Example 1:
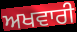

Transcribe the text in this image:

ਅਖਵਾਰੀ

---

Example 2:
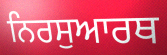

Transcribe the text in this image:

ਨਿਰਸੁਆਰਥ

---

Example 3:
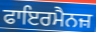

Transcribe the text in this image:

ਫਾਇਰਮੈਨਜ਼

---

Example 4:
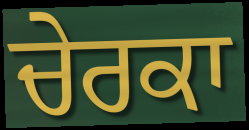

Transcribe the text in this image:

ਚੇਰਕਾ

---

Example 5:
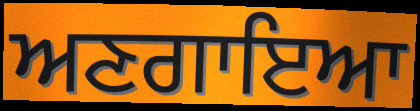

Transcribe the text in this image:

ਅਣਗਾਇਆ